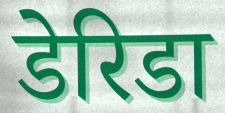
डेरिडा